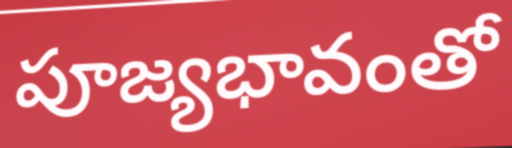
పూజ్యభావంతో